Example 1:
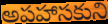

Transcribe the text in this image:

అపహాసకుని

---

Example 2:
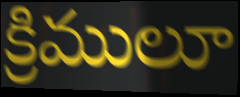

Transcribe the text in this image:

క్రిములూ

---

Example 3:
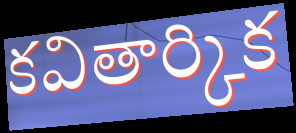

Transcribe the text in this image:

కవితార్కిక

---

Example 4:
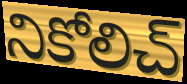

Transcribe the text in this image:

నికోలిచ్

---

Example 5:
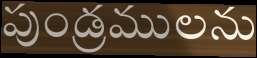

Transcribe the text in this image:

పుండ్రములను